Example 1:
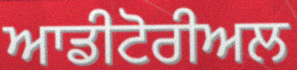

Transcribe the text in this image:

ਆਡੀਟੋਰੀਅਲ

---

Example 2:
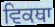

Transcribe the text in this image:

ਵਿਕਥਾ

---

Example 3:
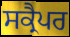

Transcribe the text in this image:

ਸਕ੍ਰੈਪਰ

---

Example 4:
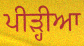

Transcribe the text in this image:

ਪੀੜ੍ਹੀਆ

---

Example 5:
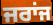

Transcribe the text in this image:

ਜਰਾਂਜ